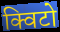
क्विटो